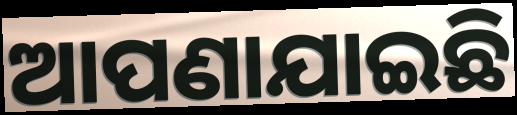
ଆପଣାଯାଇଛି